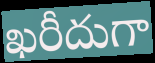
ఖరీదుగా